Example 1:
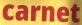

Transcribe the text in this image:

carnet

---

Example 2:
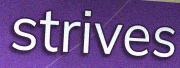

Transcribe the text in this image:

strives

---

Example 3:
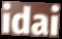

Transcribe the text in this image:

idai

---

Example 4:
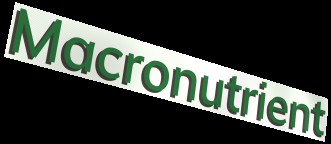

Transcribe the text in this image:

Macronutrient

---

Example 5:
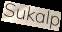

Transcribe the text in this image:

Sukalp